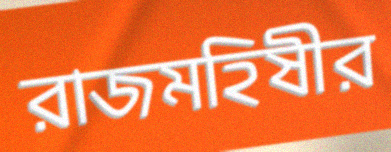
রাজমহিষীর